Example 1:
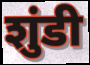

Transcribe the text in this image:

शुंडी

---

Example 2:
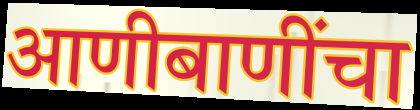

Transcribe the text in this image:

आणीबाणींचा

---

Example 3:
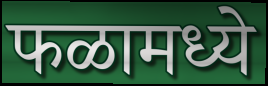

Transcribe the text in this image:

फळामध्ये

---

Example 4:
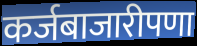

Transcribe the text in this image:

कर्जबाजारीपणा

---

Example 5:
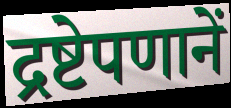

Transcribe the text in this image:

द्रष्टेपणानें